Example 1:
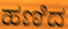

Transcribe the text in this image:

ಹಣಿದ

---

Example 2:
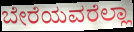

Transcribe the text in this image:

ಬೇರೆಯವರೆಲ್ಲಾ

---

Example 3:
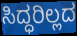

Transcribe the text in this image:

ಸಿದ್ಧರಿಲ್ಲದ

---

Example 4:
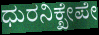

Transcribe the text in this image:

ಧುರನಿಕ್ಖೇಪೇ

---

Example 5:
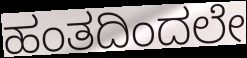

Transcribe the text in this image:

ಹಂತದಿಂದಲೇ